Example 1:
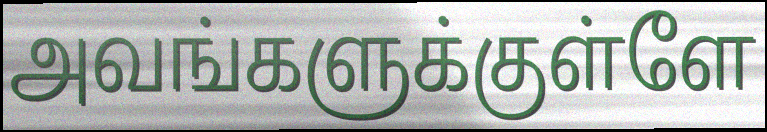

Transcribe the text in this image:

அவங்களுக்குள்ளே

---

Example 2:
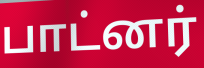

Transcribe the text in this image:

பாட்னர்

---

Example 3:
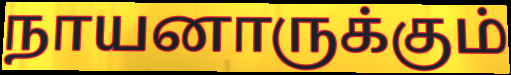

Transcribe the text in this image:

நாயனாருக்கும்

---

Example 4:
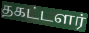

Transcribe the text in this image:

தகட்டளர்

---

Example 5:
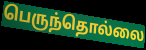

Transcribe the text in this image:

பெருந்தொல்லை